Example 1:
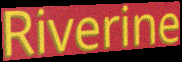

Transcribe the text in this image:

Riverine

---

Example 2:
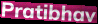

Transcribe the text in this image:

Pratibhav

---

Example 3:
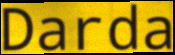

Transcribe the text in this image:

Darda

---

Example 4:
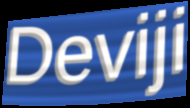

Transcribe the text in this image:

Deviji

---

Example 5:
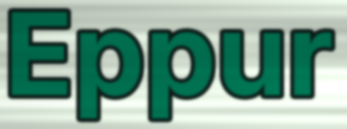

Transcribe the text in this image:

Eppur